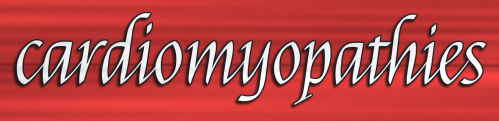
cardiomyopathies